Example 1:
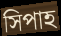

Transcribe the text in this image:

সিপাহ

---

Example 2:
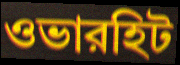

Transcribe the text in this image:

ওভারহিট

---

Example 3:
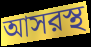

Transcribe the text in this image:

আসরস্থ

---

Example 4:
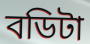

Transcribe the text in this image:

বডিটা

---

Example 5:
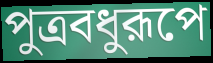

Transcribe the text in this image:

পুত্রবধুরূপে